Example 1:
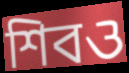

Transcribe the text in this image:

শিবও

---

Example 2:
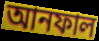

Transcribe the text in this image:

আনফাল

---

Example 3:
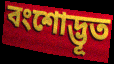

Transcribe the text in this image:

বংশোদ্ভূত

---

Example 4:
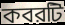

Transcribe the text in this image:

কবরটি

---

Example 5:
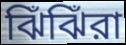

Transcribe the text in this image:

ঝিঁঝিঁরা